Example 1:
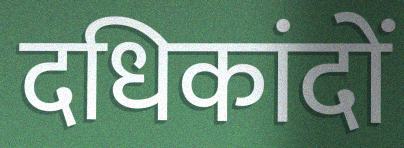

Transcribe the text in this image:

दधिकांदों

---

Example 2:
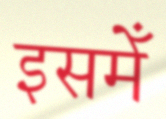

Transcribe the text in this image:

इसमेँ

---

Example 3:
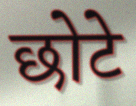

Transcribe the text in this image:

छोटे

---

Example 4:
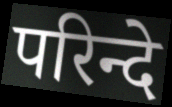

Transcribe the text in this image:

परिन्दे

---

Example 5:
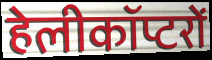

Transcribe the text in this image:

हेलीकॉप्‍टरों